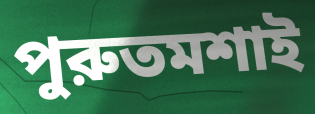
পুরুতমশাই